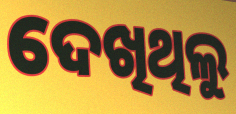
ଦେଖିଥିଲୁ